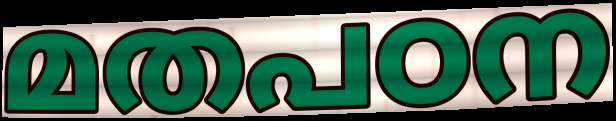
മതപഠന